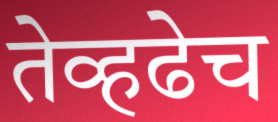
तेव्हढेच